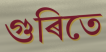
গুৰিতে